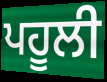
ਪਹੂਲੀ